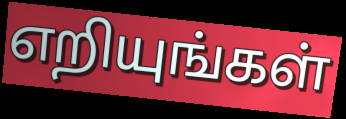
எறியுங்கள்